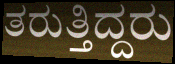
ತರುತ್ತಿದ್ದರು